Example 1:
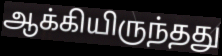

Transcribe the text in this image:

ஆக்கியிருந்தது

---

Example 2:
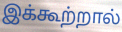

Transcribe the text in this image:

இக்கூற்றால்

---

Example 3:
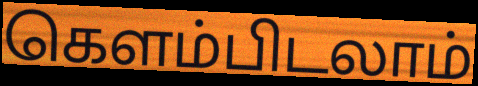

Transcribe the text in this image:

கெளம்பிடலாம்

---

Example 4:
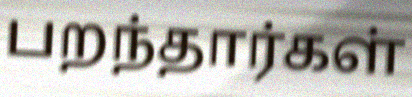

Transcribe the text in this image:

பறந்தார்கள்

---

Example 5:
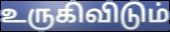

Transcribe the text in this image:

உருகிவிடும்